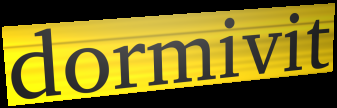
dormivit